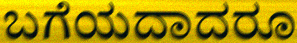
ಬಗೆಯದಾದರೂ